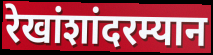
रेखांशांदरम्यान